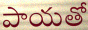
పాయతో